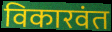
विकारवंत